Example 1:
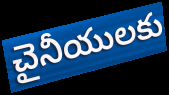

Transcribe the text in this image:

చైనీయులకు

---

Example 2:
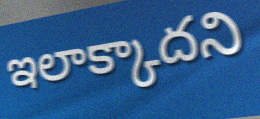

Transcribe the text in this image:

ఇలాక్కాదని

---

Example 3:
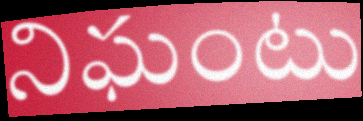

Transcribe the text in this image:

నిఘంటు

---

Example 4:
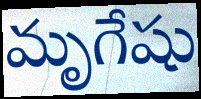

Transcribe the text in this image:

మృగేషు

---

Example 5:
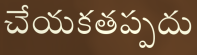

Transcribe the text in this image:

చేయకతప్పదు